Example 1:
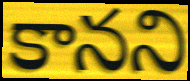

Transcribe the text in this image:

కానని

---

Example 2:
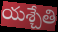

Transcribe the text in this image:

యశ్చేతి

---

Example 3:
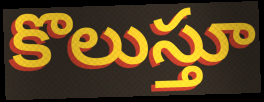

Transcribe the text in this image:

కొలుస్తూ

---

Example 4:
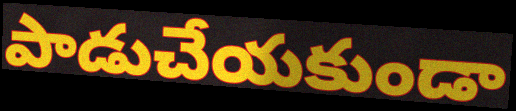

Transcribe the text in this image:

పాడుచేయకుండా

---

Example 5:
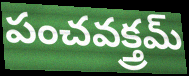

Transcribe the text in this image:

పంచవక్త్రమ్